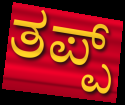
ತಪ್ಪ್